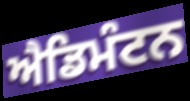
ਐਡਿਮੰਟਨ